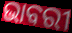
ଭାବରୀ